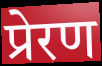
प्रेरण